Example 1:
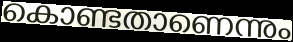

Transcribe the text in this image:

കൊണ്ടതാണെന്നും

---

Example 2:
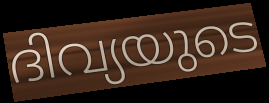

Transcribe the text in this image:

ദിവ്യയുടെ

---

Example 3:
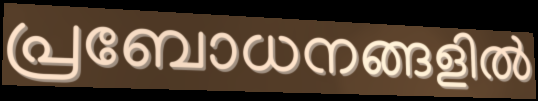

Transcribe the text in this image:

പ്രബോധനങ്ങളിൽ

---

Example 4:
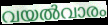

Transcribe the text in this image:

വയൽവാരം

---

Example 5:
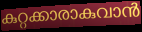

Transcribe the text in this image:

കുറ്റക്കാരാകുവാൻ